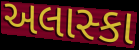
અલાસ્કા